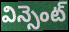
విన్సెంట్